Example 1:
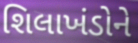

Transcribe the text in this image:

શિલાખંડોને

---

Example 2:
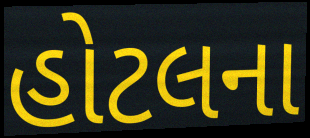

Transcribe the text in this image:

હોટલના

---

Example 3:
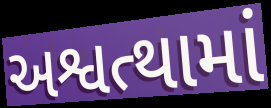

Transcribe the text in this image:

અશ્વત્થામાં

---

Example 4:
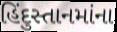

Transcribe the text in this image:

હિંદુસ્તાનમાંના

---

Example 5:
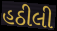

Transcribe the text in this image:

હઠીલી